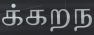
க்கறந